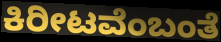
ಕಿರೀಟವೆಂಬಂತೆ